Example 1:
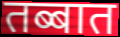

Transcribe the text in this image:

तब्बात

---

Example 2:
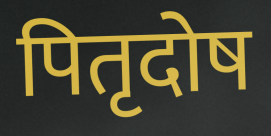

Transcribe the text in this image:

पितृदोष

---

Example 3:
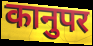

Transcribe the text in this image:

कानुपर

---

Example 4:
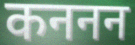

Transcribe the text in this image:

कननन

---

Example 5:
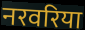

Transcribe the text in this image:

नरवरिया